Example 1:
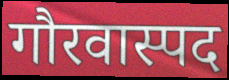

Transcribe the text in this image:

गौरवास्पद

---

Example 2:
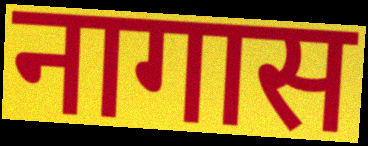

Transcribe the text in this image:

नागास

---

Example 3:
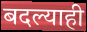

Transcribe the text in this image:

बदल्याही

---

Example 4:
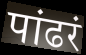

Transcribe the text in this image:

पांढरं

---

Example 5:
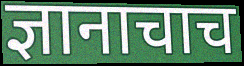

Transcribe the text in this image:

ज्ञानाचाच